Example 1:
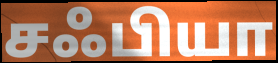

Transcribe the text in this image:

சஃபியா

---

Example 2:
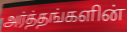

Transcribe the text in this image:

அர்த்தங்களின்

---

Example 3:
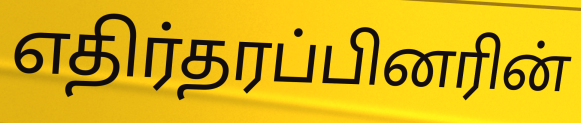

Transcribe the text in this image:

எதிர்தரப்பினரின்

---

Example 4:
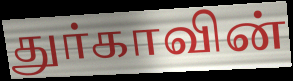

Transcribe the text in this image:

துர்காவின்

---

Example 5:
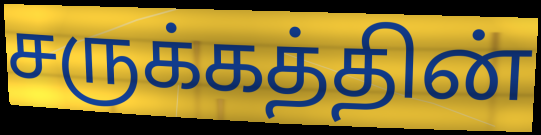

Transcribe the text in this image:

சருக்கத்தின்